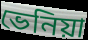
ভেনিয়া